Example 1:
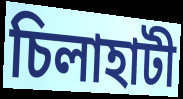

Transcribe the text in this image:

চিলাহাটী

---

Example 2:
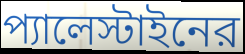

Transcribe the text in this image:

প্যালেস্টাইনের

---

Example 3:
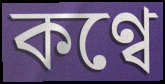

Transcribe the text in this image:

কণ্বে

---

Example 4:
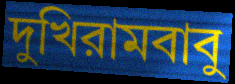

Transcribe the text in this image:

দুখিরামবাবু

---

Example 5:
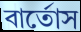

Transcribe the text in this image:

বার্তোস